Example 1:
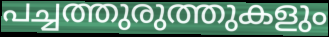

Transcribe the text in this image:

പച്ചത്തുരുത്തുകളും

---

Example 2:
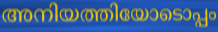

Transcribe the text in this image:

അനിയത്തിയോടൊപ്പം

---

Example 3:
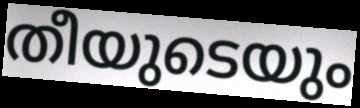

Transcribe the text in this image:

തീയുടെയും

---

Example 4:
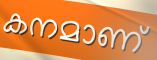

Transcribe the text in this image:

കനമാണ്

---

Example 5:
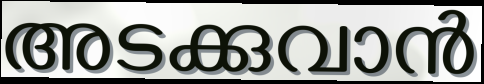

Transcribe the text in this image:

അടക്കുവാൻ